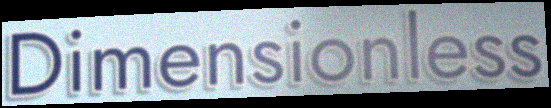
Dimensionless